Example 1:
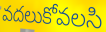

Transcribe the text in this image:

వదలుకోవలసి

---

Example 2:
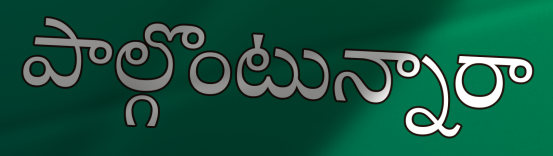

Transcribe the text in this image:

పాల్గొంటున్నారా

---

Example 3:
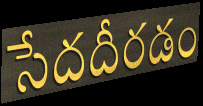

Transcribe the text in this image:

సేదదీరడం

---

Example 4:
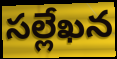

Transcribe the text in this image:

సల్లేఖన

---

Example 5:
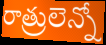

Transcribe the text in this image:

రాత్రులెన్నో